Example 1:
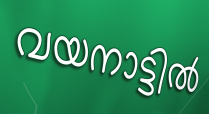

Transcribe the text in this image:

വയനാട്ടിൽ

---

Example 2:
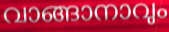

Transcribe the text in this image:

വാങ്ങാനാവും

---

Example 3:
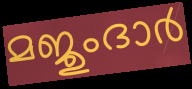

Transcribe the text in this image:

മജുംദാർ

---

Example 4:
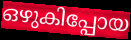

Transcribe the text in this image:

ഒഴുകിപ്പോയ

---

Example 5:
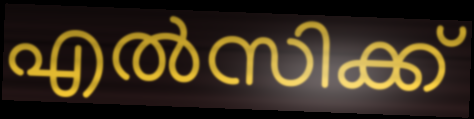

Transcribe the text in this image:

എൽസിക്ക്